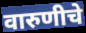
वारुणीचे